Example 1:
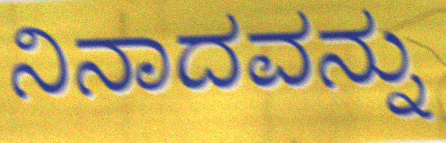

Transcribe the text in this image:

ನಿನಾದವನ್ನು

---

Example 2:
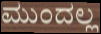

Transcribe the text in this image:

ಮುಂದಲ್ಲ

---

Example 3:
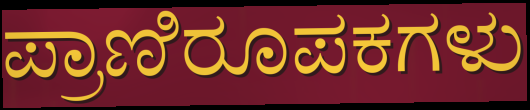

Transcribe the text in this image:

ಪ್ರಾಣಿರೂಪಕಗಳು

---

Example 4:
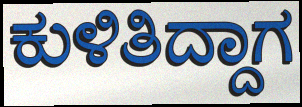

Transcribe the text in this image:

ಕುಳಿತಿದ್ದಾಗ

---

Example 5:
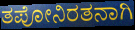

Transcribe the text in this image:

ತಪೋನಿರತನಾಗಿ